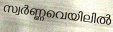
സ്വർണ്ണവെയിലിൽ